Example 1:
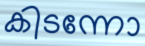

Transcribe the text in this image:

കിടന്നോ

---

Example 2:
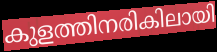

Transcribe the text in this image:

കുളത്തിനരികിലായി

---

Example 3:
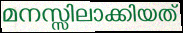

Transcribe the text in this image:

മനസ്സിലാക്കിയത്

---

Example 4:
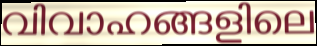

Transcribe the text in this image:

വിവാഹങ്ങളിലെ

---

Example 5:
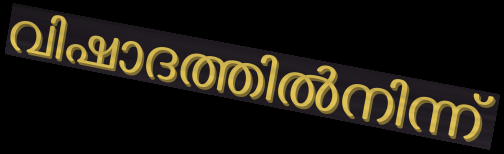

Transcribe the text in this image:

വിഷാദത്തിൽനിന്ന്